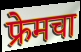
फ्रेमचा